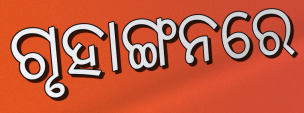
ଗୃହାଙ୍ଗନରେ